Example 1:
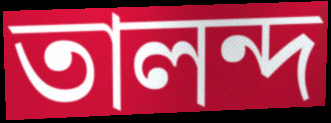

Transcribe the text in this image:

তালন্দ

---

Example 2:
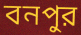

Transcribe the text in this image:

বনপুর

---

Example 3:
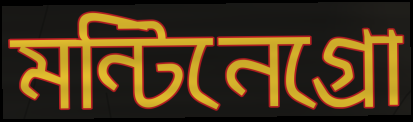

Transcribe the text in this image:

মন্টিনেগ্রো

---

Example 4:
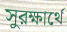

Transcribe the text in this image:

সুরক্ষার্থে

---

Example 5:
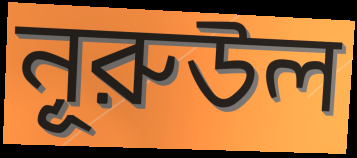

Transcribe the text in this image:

নূরুউল